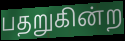
பதறுகின்ற